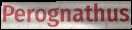
Perognathus